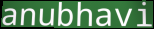
anubhavi